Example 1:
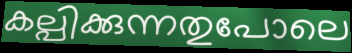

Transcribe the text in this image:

കല്പിക്കുന്നതുപോലെ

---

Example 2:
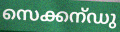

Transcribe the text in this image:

സെക്കന്ഡു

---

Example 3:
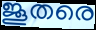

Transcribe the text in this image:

ജൂതരെ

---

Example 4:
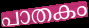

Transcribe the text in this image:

പാതകം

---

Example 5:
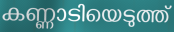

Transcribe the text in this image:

കണ്ണാടിയെടുത്ത്